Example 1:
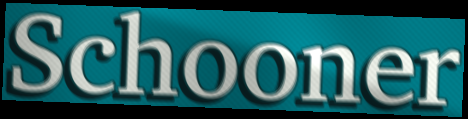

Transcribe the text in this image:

Schooner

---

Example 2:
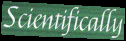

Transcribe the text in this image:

Scientifically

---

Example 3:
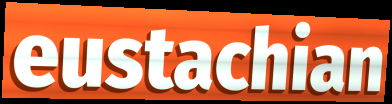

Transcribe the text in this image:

eustachian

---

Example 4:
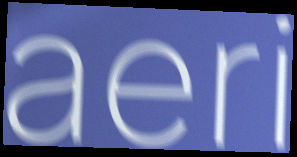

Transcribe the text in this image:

aeri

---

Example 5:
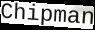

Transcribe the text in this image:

Chipman